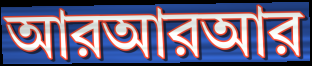
আরআরআর